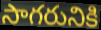
సాగరునికి